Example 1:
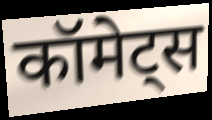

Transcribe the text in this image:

कॉमेट्स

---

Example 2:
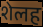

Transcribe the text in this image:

शेलह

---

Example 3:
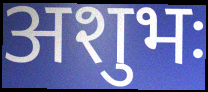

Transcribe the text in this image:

अशुभः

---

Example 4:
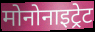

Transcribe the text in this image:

मोनोनाइट्रेट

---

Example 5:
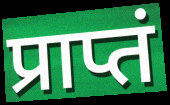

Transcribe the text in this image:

प्राप्तं